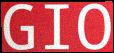
GIO